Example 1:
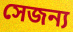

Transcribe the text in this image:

সেজন্য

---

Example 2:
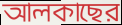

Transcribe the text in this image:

আলকাছের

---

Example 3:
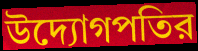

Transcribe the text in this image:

উদ্যোগপতির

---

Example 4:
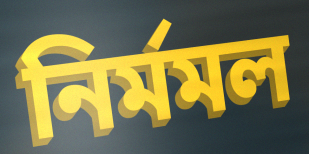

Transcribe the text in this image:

নির্মমল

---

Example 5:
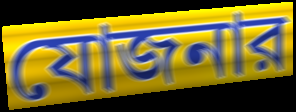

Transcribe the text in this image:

যোজনার